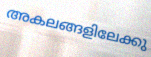
അകലങ്ങളിലേക്കു